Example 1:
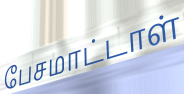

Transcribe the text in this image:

பேசமாட்டாள்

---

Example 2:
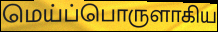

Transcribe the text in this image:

மெய்ப்பொருளாகிய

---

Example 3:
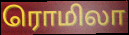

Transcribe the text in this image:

ரொமிலா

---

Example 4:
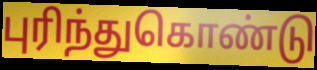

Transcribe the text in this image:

புரிந்துகொண்டு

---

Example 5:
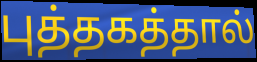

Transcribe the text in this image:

புத்தகத்தால்